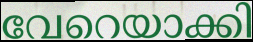
വേറെയാക്കി